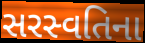
સરસ્વતિના